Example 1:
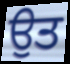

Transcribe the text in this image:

ਉਤ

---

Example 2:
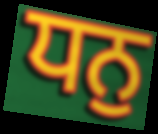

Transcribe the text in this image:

ਧਨੁ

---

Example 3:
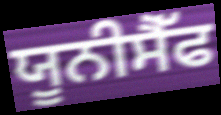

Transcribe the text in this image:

ਯੂਨੀਸੈੱਫ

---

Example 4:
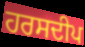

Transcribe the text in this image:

ਹਰਸਦੀਪ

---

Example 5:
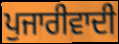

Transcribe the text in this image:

ਪੁਜਾਰੀਵਾਦੀ